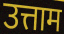
उत्ताम